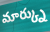
మార్క్ను